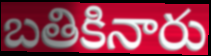
బతికినారు